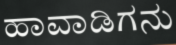
ಹಾವಾಡಿಗನು